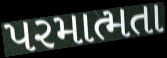
પરમાત્મતા